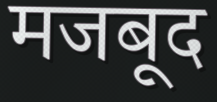
मजबूद